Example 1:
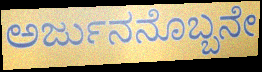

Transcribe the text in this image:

ಅರ್ಜುನನೊಬ್ಬನೇ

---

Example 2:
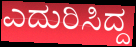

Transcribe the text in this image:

ಎದುರಿಸಿದ್ದ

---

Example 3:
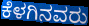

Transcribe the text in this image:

ಕೆಳಗಿನವರು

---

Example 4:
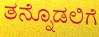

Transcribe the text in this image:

ತನ್ನೊಡಲಿಗೆ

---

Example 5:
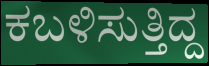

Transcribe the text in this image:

ಕಬಳಿಸುತ್ತಿದ್ದ